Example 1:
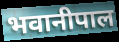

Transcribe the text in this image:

भवानीपाल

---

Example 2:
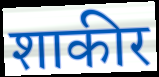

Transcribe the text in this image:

शाकीर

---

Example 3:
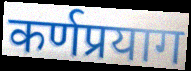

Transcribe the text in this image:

कर्णप्रयाग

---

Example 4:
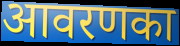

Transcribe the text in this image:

आवरणका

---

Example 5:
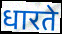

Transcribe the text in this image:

धारते